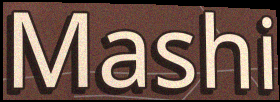
Mashi